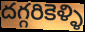
దగ్గరికెళ్ళి